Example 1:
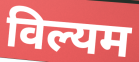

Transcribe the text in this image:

विल्यम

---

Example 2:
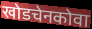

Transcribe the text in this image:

खोडचेनकोवा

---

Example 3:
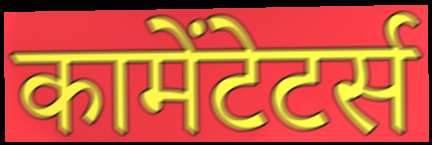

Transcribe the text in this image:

कामेंटेटर्स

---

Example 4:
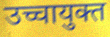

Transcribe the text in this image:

उच्चायुक्त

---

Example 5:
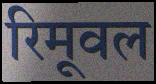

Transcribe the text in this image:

रिमूवल